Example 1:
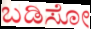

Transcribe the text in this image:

ಬಡಿಸೋ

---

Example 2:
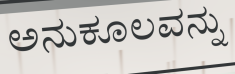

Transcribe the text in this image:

ಅನುಕೂಲವನ್ನು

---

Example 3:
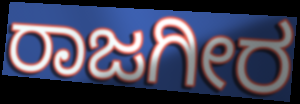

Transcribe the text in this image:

ರಾಜಗೀರ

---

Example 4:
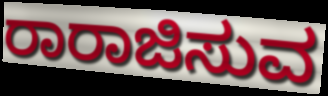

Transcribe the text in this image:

ರಾರಾಜಿಸುವ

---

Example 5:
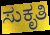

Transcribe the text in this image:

ಸುಕೃತಿ